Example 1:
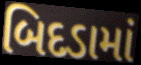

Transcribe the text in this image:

બિદડામાં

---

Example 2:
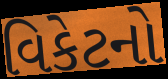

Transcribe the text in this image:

વિકેટનો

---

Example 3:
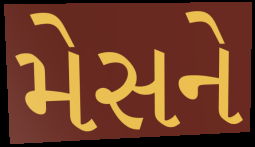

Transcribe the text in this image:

મેસને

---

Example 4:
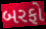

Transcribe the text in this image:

બરફો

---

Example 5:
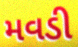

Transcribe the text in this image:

મવડી